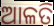
ଆଳତି